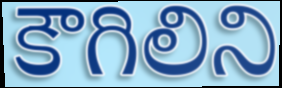
కౌగిలిని